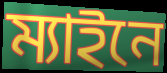
ম্যাইনে